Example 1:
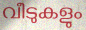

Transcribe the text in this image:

വീടുകളും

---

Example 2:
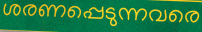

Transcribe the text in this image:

ശരണപ്പെടുന്നവരെ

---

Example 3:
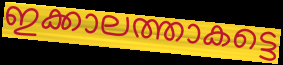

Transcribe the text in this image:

ഇക്കാലത്താകട്ടെ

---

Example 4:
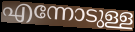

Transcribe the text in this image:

എന്നോടുള്ള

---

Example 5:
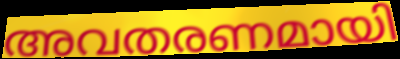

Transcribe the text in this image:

അവതരണമായി